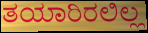
ತಯಾರಿರಲಿಲ್ಲ